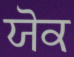
ਯੋਕ